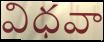
విధవా